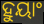
ହୁୟାଂ